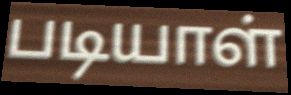
படியாள்